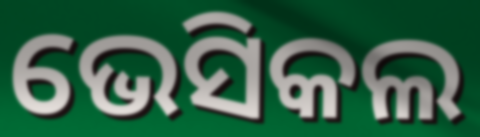
ଭେସିକଲ